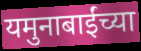
यमुनाबाईंच्या